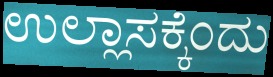
ಉಲ್ಲಾಸಕ್ಕೆಂದು